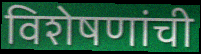
विशेषणांची